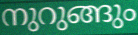
നുറുങ്ങും